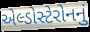
એલ્ડોસ્ટેરોનનું